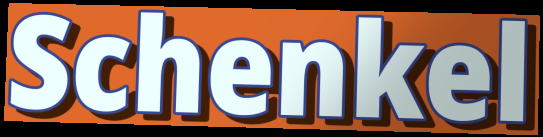
Schenkel